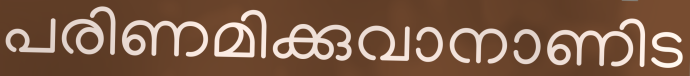
പരിണമിക്കുവാനാണിട